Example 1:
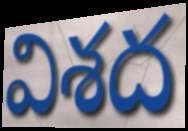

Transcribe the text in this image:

విశద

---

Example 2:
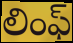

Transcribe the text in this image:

లింఫ్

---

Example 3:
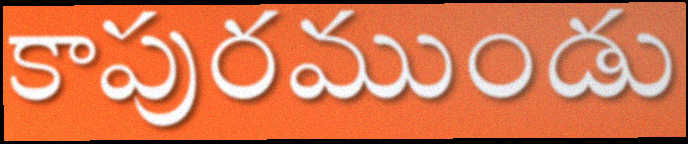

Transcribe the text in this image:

కాపురముండు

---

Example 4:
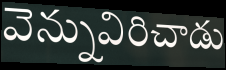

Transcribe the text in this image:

వెన్నువిరిచాడు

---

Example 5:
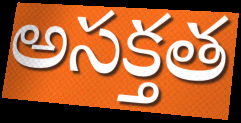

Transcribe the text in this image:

అసక్తత